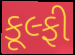
કૂલ્ફી